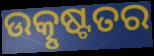
ଉତ୍କୃଷ୍ଟତର